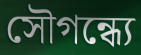
সৌগন্ধ্যে